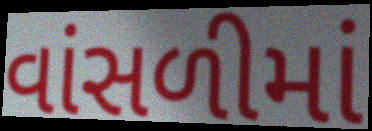
વાંસળીમાં